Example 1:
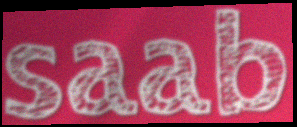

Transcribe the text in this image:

saab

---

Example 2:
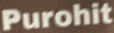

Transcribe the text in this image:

Purohit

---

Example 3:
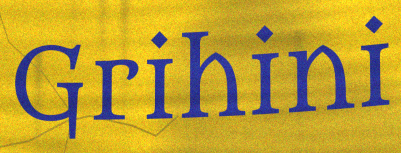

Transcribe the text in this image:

Grihini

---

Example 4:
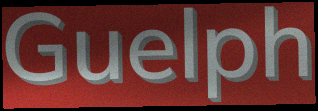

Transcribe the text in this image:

Guelph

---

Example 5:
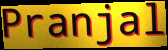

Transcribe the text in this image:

Pranjal